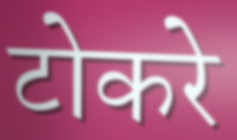
टोकरे